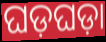
ଘଡ଼ଘଡ଼ା